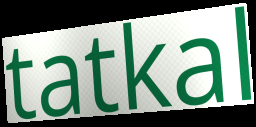
tatkal